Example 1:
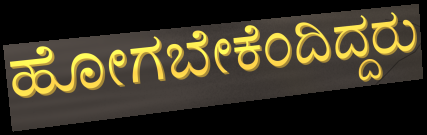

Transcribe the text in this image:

ಹೋಗಬೇಕೆಂದಿದ್ದರು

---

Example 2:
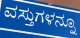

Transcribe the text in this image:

ವಸ್ತುಗಳನ್ನೂ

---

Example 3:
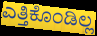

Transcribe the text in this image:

ಎತ್ತಿಕೊಂಡಿಲ್ಲ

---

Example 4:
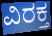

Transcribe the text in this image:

ವಿರಕ್ತ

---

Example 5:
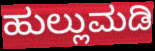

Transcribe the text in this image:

ಹುಲ್ಲುಮಡಿ